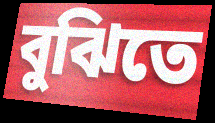
বুঝিতে